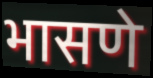
भासणे